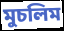
মুচলিম